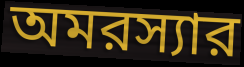
অমরস্যার